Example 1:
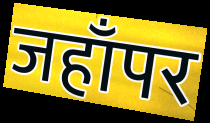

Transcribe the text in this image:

जहाँपर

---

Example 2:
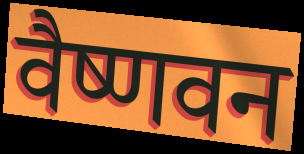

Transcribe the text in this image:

वैष्णवन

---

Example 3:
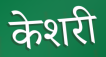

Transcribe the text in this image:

केशरी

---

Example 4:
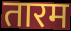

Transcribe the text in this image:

तारम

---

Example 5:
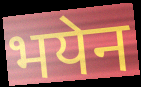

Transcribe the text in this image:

भयेन